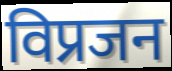
विप्रजन